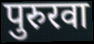
पुरुरवा